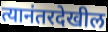
त्यानंतरदेखील